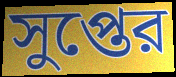
সুপ্তের